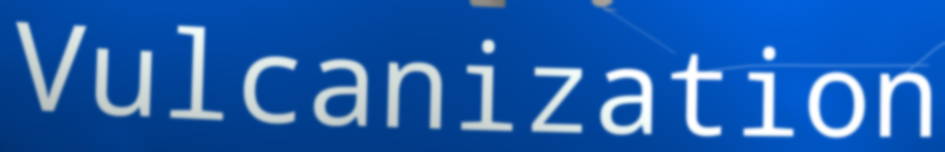
Vulcanization